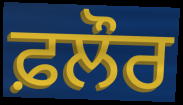
ਫ਼ਲੌਰ